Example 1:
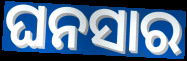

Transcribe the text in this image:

ଘନସାର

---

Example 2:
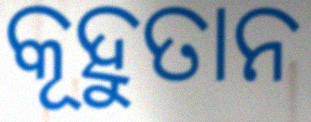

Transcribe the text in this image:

କୂହୁତାନ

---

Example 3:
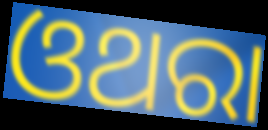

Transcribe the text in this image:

ଓଥରା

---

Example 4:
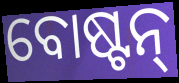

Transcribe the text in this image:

ବୋଷ୍ଟନ୍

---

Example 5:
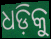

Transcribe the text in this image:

ଧଡ଼ିକୁ